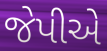
જેપીએ